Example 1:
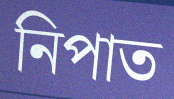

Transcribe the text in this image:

নিপাত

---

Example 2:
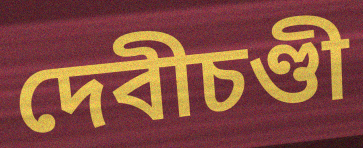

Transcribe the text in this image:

দেবীচণ্ডী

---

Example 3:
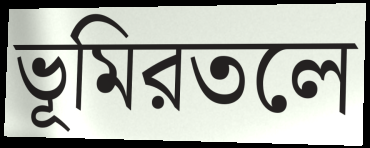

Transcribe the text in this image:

ভূমিরতলে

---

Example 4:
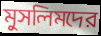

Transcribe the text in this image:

মুসলিমদের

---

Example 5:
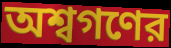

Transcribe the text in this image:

অশ্বগণের